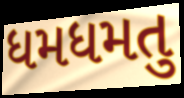
ધમધમતુ